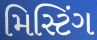
મિસ્ટિંગ